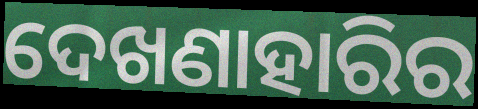
ଦେଖଣାହାରିର